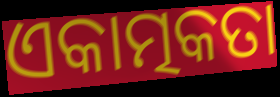
ଏକାତ୍ମକତା